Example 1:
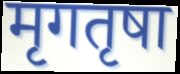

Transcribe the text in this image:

मृगतृषा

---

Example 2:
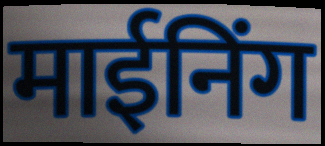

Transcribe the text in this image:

माईनिंग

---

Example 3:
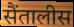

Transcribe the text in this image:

सैंतालीस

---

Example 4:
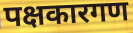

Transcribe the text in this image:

पक्षकारगण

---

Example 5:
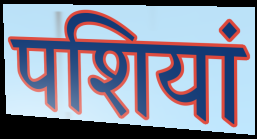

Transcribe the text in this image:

पशियां